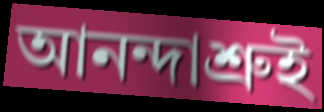
আনন্দাশ্রুই